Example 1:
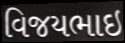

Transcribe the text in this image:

વિજયભાઇ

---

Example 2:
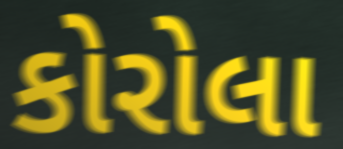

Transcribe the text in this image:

કોરોલા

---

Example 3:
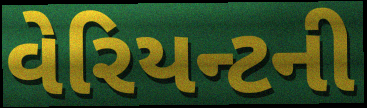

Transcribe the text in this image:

વેરિયન્ટની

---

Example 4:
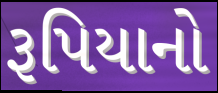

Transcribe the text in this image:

રૂપિયાનો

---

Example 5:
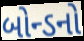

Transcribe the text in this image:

બોન્ડનો